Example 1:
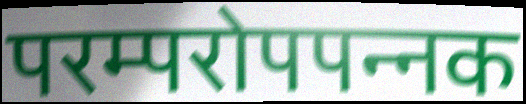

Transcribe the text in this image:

परम्परोपपन्नक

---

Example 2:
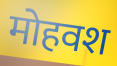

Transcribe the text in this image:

मोहवश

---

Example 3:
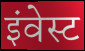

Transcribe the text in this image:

इंवेस्ट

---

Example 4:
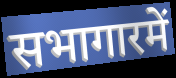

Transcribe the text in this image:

सभागारमें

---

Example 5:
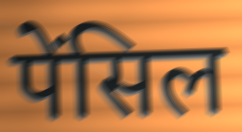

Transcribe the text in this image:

पेंसिल